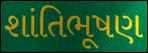
શાંતિભૂષણ